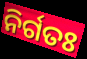
ନିର୍ଗତଃ